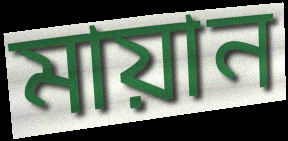
মায়ান